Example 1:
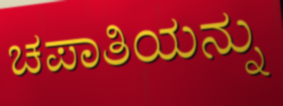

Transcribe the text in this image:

ಚಪಾತಿಯನ್ನು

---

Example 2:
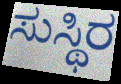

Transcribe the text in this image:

ಸುಸ್ಥಿರ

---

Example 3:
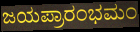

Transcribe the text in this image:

ಜಯಪ್ರಾರಂಭಮಂ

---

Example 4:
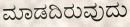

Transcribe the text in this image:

ಮಾಡದಿರುವುದು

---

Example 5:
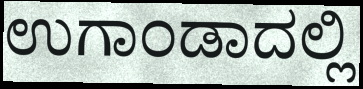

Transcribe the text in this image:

ಉಗಾಂಡಾದಲ್ಲಿ